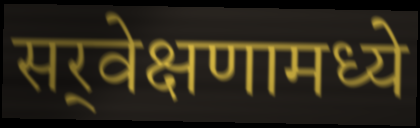
सर्वेक्षणामध्ये